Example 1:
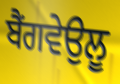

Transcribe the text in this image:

ਬੈਂਗਵੇਉਲੂ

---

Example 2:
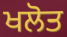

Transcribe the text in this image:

ਖਲੋਤ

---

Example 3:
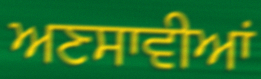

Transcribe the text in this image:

ਅਣਸਾਵੀਆਂ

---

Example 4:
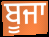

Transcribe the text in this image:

ਬੂਜਾ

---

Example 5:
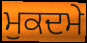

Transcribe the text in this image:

ਮੁਕਦਮੇ